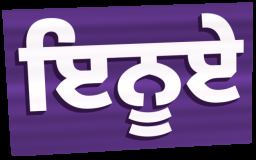
ਇਨੂਏ